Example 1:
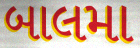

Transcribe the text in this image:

બાલમા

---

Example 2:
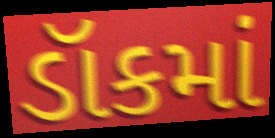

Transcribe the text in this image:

ડૉકમાં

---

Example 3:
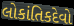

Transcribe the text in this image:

લોકાંતિકદેવો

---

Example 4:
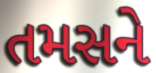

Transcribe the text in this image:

તમસને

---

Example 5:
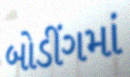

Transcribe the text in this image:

બોડીંગમાં